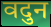
वदुन